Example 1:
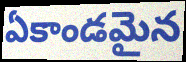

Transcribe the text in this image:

ఏకాండమైన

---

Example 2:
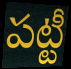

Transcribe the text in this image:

పట్టీ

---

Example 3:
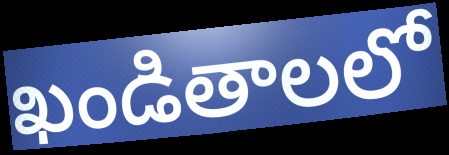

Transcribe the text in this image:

ఖండితాలలో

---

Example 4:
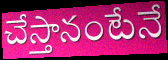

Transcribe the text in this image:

చేస్తానంటేనే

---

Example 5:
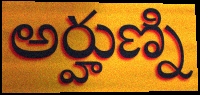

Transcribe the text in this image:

అర్హుణ్ని